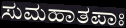
ಸುಮಹಾತಪಾಃ